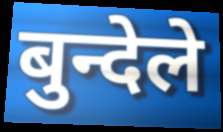
बुन्देले